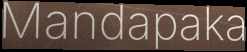
Mandapaka